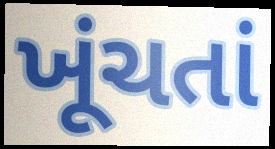
ખૂંચતાં